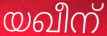
യഖീന്